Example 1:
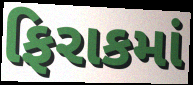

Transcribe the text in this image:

ફિરાકમાં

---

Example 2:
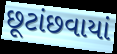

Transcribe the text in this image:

છૂટાંછવાયાં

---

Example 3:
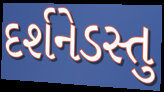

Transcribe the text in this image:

દર્શનેડસ્તુ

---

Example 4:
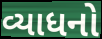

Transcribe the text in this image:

વ્યાધનો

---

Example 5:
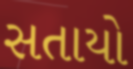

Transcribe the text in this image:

સતાયો